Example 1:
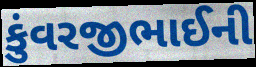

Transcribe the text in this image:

કુંવરજીભાઈની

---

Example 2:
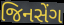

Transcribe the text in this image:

જિનસેંગ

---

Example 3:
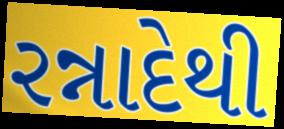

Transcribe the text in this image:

રન્નાદેથી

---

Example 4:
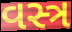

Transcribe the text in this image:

વસ્ત્ર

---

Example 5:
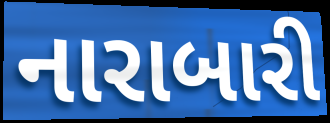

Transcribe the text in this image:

નારાબારી